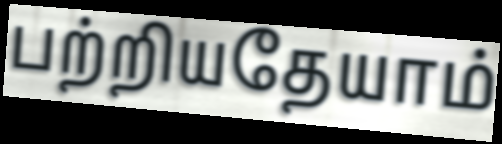
பற்றியதேயாம்